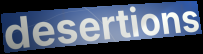
desertions